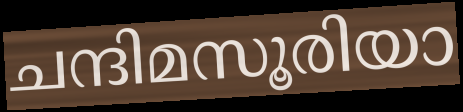
ചന്ദിമസൂരിയാ